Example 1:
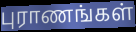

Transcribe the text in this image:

புராணங்கள்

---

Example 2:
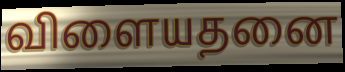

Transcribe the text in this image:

விளையதனை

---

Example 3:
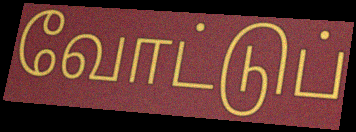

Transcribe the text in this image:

வோட்டுப்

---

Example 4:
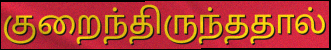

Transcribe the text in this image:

குறைந்திருந்ததால்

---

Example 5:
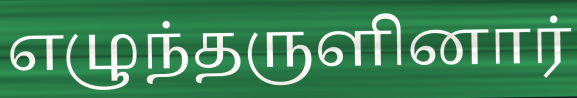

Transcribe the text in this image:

எழுந்தருளினார்